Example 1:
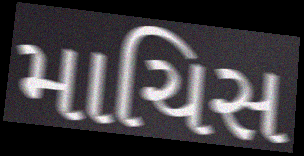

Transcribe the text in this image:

માચિસ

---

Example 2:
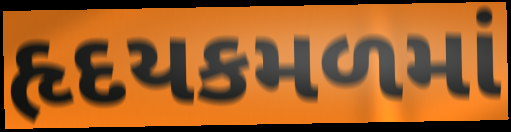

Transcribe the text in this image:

હૃદયકમળમાં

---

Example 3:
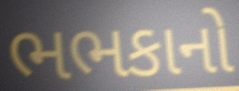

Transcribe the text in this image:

ભભકાનો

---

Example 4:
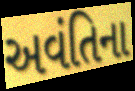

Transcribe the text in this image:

અવંતિના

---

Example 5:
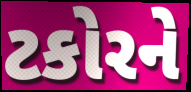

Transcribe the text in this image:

ટકોરને